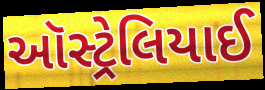
ઑસ્ટ્રેલિયાઈ